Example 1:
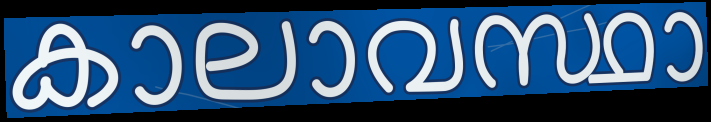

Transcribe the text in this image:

കാലാവസ്ഥാ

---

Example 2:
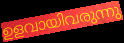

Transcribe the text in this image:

ഉളവായിവരുന്നു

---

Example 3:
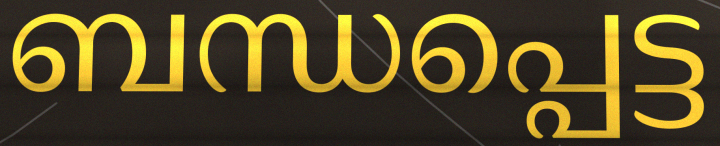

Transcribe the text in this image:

ബന്ധപ്പെട്ട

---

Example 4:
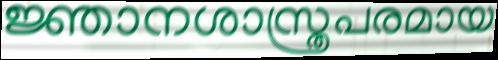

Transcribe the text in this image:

ജ്ഞാനശാസ്ത്രപരമായ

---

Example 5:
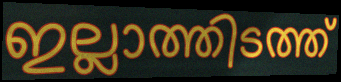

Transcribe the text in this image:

ഇല്ലാത്തിടത്ത്